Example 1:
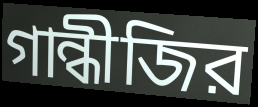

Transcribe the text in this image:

গান্ধীজির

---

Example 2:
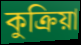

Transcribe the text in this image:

কুক্রিয়া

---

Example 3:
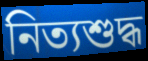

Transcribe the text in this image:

নিত্যশুদ্ধ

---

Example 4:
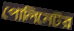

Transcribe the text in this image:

পোলিনেটর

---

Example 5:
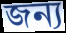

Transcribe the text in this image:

জন্য়